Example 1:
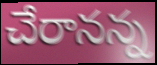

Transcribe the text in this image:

చేరానన్న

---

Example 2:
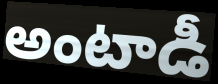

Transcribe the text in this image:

అంటాడీ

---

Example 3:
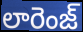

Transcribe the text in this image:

లారెంజ్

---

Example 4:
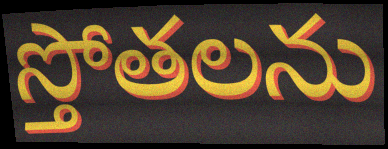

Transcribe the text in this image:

స్తోతలను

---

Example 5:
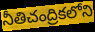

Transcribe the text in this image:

నీతిచంద్రికలోని